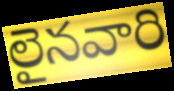
లైనవారి